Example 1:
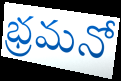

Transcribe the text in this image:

భ్రమనో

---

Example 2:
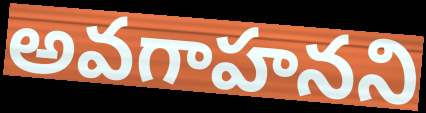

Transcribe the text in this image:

అవగాహనని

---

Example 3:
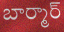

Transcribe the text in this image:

బార్మార్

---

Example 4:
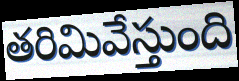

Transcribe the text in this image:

తరిమివేస్తుంది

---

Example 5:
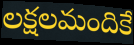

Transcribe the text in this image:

లక్షలమందికే